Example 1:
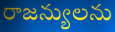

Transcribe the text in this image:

రాజన్యులను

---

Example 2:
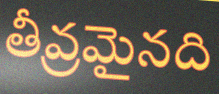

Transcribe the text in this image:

తీవ్రమైనది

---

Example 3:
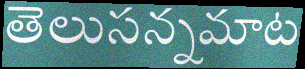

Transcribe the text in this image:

తెలుసన్నమాట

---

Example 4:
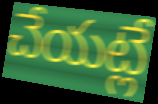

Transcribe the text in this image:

చేయట్లే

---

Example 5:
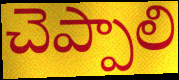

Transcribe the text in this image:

చెప్పాలి